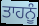
ਤਾਹਨੂੰ